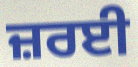
ਜ਼ਰਈ